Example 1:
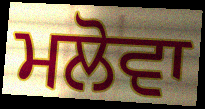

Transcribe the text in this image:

ਮਲੋਵਾ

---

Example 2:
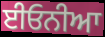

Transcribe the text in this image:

ਈਓਨੀਆ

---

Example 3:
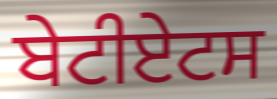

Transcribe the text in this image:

ਬੇਟੀਏਟਸ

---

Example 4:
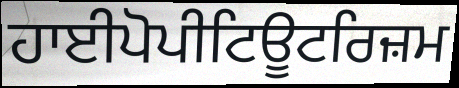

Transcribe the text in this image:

ਹਾਈਪੋਪੀਟਿਊਟਰਿਜ਼ਮ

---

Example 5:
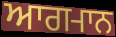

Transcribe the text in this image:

ਆਗ੍ਮਾਨ